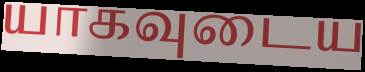
யாகவுடைய